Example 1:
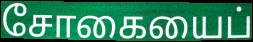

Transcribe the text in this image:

சோகையைப்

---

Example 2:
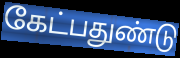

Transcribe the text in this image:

கேட்பதுண்டு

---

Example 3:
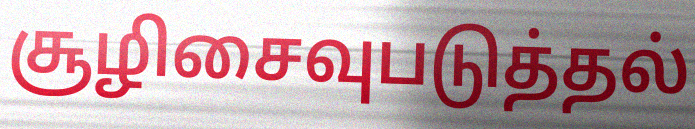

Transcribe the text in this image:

சூழிசைவுபடுத்தல்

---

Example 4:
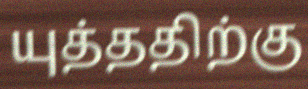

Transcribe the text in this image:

யுத்ததிற்கு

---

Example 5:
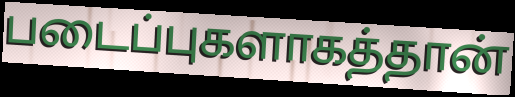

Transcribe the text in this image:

படைப்புகளாகத்தான்